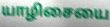
யாழிசையை